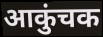
आकुंचक